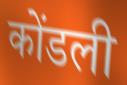
कोंडली